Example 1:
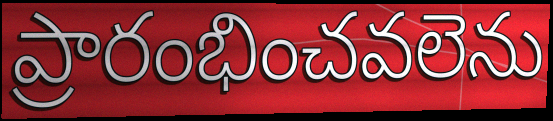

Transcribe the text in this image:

ప్రారంభించవలెను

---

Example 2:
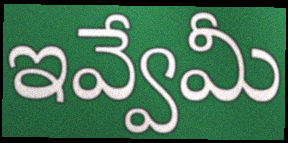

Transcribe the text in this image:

ఇవ్వేమీ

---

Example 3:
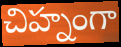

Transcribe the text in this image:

చిహ్నంగా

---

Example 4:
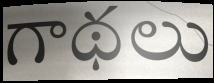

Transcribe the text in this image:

గాథలు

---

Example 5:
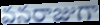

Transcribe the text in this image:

వనరాజుగా